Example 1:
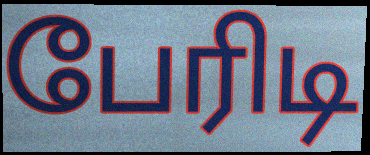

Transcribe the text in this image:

பேரிடி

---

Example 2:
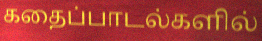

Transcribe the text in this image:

கதைப்பாடல்களில்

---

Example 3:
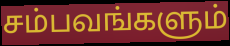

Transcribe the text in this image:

சம்பவங்களும்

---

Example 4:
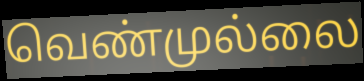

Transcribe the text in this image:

வெண்முல்லை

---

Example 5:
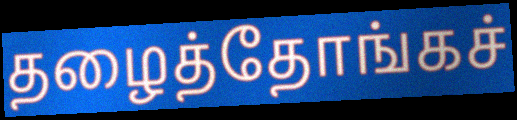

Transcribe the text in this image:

தழைத்தோங்கச்